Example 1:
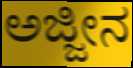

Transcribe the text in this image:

ಅಜ್ಜೀನ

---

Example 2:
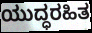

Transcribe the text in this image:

ಯುದ್ಧರಹಿತ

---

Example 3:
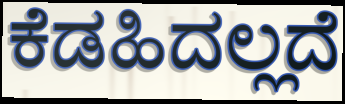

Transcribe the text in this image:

ಕೆಡಹಿದಲ್ಲದೆ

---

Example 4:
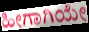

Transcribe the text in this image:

ಹೀಗಾಗಿಯೇ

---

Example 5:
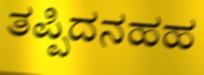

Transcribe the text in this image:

ತಪ್ಪಿದನಹಹ